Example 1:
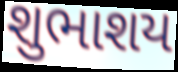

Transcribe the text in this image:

શુભાશય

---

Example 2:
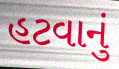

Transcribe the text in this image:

હટવાનું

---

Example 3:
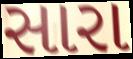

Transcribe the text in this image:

સારા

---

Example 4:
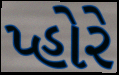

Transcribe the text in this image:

પ્હોરે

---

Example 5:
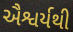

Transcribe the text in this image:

ઐશ્વર્યથી